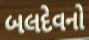
બલદેવનો